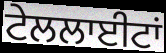
ਟੇਲਲਾਈਟਾਂ